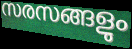
സരസങ്ങളും